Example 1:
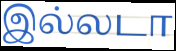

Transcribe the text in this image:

இல்லடா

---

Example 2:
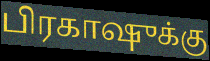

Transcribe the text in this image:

பிரகாஷுக்கு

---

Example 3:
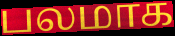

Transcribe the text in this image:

பலமாக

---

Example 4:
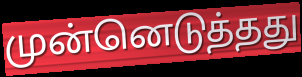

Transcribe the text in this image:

முன்னெடுத்தது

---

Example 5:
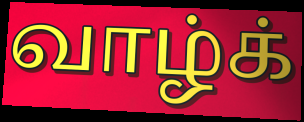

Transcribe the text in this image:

வாழ்க்